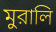
মুরালি